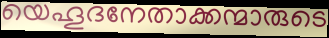
യെഹൂദനേതാക്കന്മാരുടെ